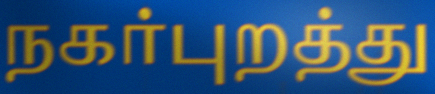
நகர்புறத்து